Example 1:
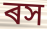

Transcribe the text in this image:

ৰস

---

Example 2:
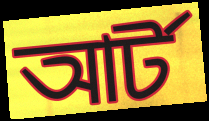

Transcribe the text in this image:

আৰ্ট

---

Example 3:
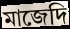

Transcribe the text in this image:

মাজেদি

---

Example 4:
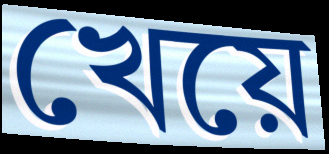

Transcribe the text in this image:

খেয়ে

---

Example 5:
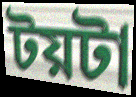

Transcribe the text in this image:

টয়টা